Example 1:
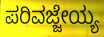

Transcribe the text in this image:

ಪರಿವಜ್ಜೇಯ್ಯ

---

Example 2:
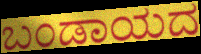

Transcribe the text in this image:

ಬಂಡಾಯದ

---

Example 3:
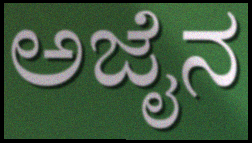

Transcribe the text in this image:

ಅಜೈನ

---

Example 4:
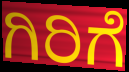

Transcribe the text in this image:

ಗಿರಿಗೆ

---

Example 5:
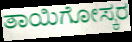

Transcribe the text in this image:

ತಾಯಿಗೋಸ್ಕರ